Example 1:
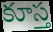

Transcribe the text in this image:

కూస్త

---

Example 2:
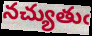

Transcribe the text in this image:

నచ్యుతుఁ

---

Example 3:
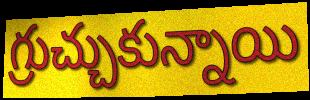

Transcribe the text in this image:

గ్రుచ్చుకున్నాయి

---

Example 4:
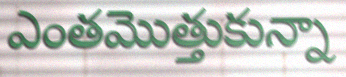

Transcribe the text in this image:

ఎంతమొత్తుకున్నా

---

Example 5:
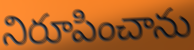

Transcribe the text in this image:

నిరూపించాను